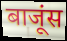
बाजूंस